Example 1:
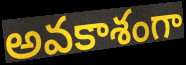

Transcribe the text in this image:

అవకాశంగా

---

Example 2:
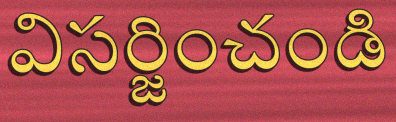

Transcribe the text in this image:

విసర్జించండి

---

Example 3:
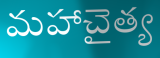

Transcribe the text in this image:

మహాచైత్య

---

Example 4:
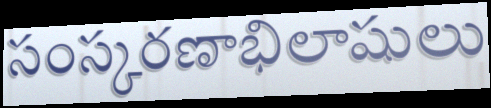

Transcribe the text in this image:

సంస్కరణాభిలాషులు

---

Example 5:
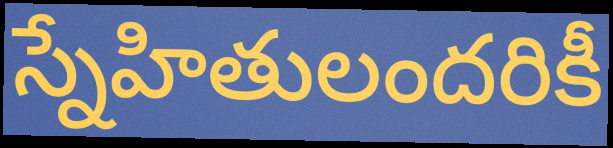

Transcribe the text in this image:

స్నేహితులందరికీ